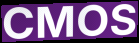
CMOS